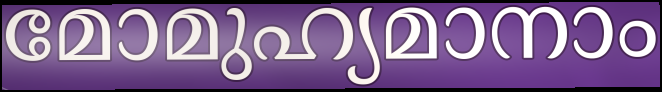
മോമുഹ്യമാനാം